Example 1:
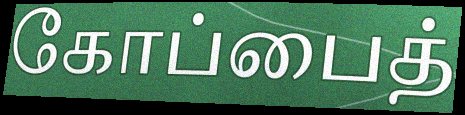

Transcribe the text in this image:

கோப்பைத்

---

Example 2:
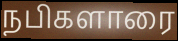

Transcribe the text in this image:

நபிகளாரை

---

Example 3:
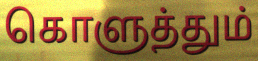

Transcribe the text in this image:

கொளுத்தும்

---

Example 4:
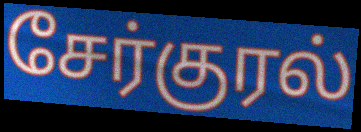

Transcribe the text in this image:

சேர்குரல்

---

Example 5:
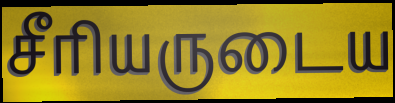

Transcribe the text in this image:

சீரியருடைய